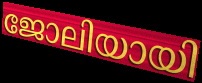
ജോലിയായി